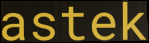
astek